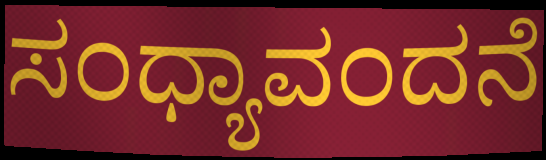
ಸಂಧ್ಯಾವಂದನೆ